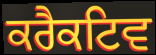
ਕਰੈਕਟਿਵ